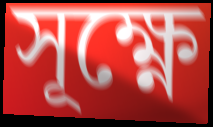
সূক্ষ্ণে